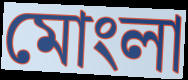
মোংলা